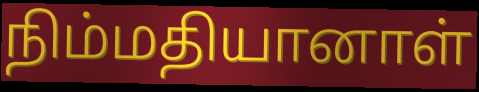
நிம்மதியானாள்